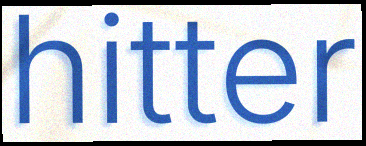
hitter